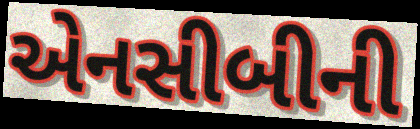
એનસીબીની